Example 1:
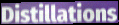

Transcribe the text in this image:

Distillations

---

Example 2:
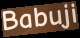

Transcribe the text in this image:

Babuji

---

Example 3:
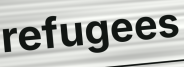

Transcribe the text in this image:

refugees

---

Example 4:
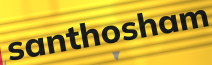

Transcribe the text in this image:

santhosham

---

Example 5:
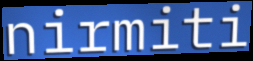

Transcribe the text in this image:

nirmiti